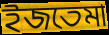
ইজতেমা